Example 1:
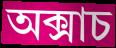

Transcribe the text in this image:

অক্সাচ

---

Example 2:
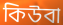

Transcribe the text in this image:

কিউবা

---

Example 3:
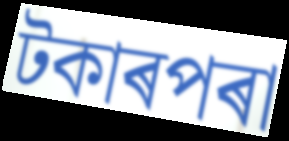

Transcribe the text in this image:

টকাৰপৰা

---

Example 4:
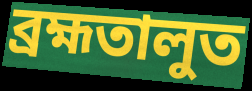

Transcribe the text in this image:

ব্ৰহ্মতালুত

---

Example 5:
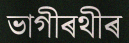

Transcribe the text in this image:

ভাগীৰথীৰ